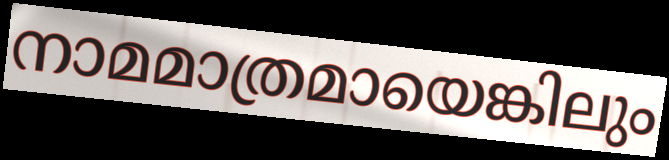
നാമമാത്രമായെങ്കിലും